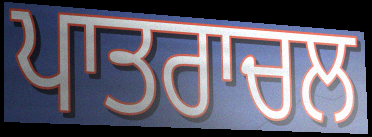
ਪਾਤਰਾਚਲ